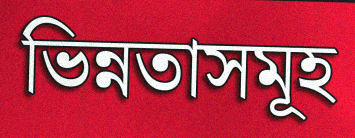
ভিন্নতাসমূহ